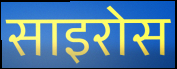
साइरोस